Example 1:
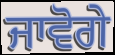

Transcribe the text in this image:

ਜਾਵੋਗੇ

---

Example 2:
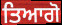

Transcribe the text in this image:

ਤਿਆਗੋ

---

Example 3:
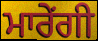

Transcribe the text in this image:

ਮਾਰੇਂਗੀ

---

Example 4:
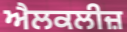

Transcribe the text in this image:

ਐਲਕਲੀਜ਼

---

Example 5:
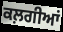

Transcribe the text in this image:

ਕਲ਼ਗੀਆਂ